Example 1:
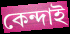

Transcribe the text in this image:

কেন্দাই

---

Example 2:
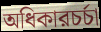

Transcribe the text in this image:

অধিকারচর্চা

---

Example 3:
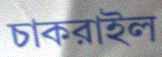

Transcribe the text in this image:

চাকরাইল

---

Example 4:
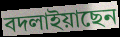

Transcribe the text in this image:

বদলাইয়াছেন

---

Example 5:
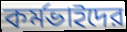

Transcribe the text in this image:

কর্মভাইদের